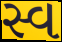
સ્વ